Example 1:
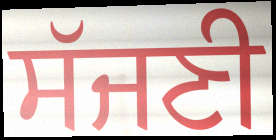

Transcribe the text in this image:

ਸੱਜਣੀ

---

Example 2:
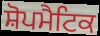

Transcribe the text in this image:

ਸ਼ੋਪਮੈਟਿਕ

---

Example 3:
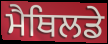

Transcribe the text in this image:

ਮੈਥਿਲਡੇ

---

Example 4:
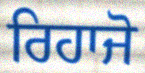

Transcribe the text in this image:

ਰਿਹਾਜੋ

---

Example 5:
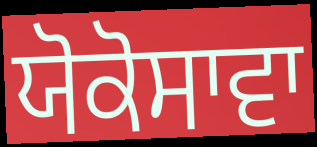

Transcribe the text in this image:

ਯੋਕੋਸਾਵਾ